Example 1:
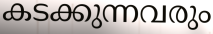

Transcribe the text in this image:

കടക്കുന്നവരും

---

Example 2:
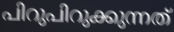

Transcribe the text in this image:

പിറുപിറുക്കുന്നത്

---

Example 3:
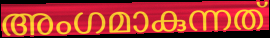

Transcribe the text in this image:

അംഗമാകുന്നത്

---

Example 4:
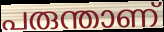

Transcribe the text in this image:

പരുന്താണ്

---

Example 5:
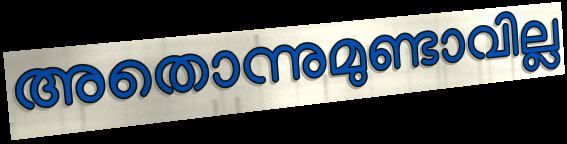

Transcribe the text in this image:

അതൊന്നുമുണ്ടാവില്ല